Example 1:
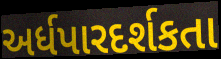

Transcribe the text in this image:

અર્ધપારદર્શકતા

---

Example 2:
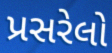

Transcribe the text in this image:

પ્રસરેલો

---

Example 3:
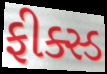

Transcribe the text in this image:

ફીક્સ્ડ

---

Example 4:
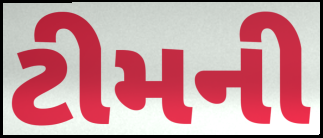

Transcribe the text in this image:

ટીમની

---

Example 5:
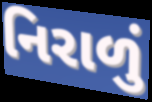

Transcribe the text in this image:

નિરાળું